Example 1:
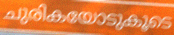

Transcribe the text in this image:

ചുരികയോടുകൂടെ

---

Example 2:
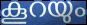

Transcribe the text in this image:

കൂറയും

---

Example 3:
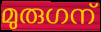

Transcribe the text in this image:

മുരുഗന്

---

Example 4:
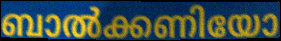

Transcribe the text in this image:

ബാൽക്കണിയോ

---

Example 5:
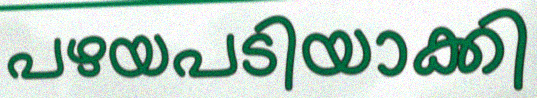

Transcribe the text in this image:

പഴയപടിയാക്കി